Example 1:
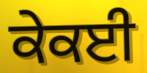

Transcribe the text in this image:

ਕੇਕਈ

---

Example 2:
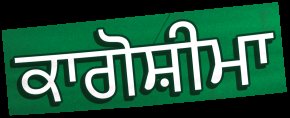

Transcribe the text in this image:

ਕਾਗੋਸ਼ੀਮਾ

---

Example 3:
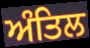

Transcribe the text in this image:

ਅੰਤਿਲ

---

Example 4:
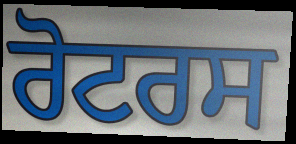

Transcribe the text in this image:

ਰੋਟਰਸ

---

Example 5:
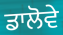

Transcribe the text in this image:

ਡਾਲੋਵੇ